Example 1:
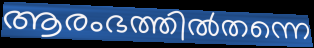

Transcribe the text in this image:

ആരംഭത്തിൽതന്നെ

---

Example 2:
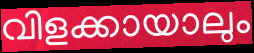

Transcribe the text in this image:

വിളക്കായാലും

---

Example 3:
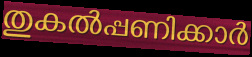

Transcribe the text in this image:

തുകൽപ്പണിക്കാർ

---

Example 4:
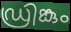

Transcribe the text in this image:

ഡ്രിങ്കും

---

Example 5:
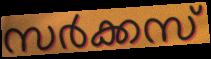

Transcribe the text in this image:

സർക്കസ്